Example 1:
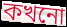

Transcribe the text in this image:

কখনো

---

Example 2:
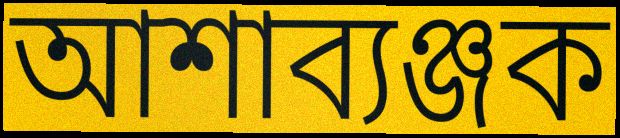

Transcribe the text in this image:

আশাব্যঞ্জক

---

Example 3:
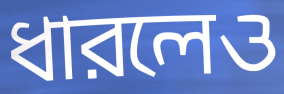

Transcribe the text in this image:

ধারলেও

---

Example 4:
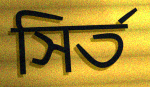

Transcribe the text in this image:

সির্ত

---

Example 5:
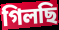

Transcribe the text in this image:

গিলছি